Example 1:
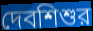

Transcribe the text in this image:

দেবশিশুর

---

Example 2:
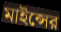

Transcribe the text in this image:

মাইন্সের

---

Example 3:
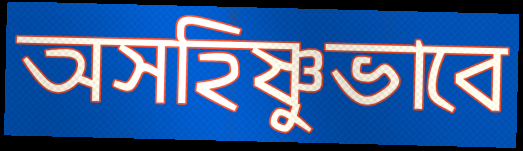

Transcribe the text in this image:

অসহিষ্ণুভাবে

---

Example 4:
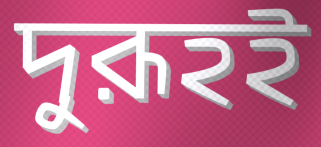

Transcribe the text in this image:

দুরূহই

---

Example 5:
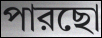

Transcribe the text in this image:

পারছো